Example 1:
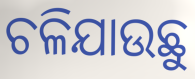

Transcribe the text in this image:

ଚଳିଯାଉଛୁ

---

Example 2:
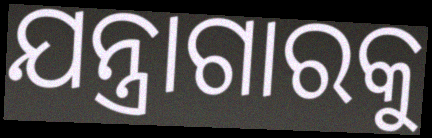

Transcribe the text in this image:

ଯନ୍ତ୍ରାଗାରକୁ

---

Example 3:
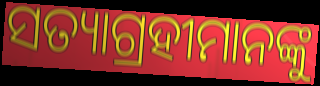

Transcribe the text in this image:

ସତ୍ୟାଗ୍ରହୀମାନଙ୍କୁ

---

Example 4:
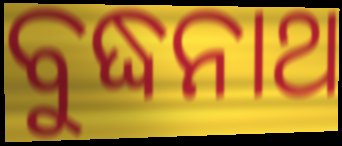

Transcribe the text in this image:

ବୁଦ୍ଧନାଥ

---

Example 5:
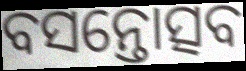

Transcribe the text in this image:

ବସନ୍ତୋତ୍ସବ